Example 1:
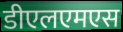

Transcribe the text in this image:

डीएलएमएस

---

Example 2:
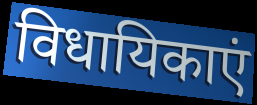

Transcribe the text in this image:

विधायिकाएं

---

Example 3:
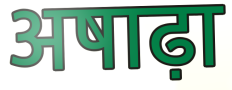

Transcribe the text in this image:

अषाढ़ा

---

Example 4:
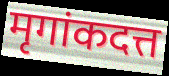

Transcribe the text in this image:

मृगांकदत्त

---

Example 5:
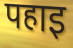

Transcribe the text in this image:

पहाइ